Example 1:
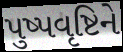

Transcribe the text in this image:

પુષ્પવૃષ્ટિને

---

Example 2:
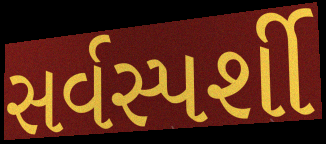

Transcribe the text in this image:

સર્વસ્પર્શી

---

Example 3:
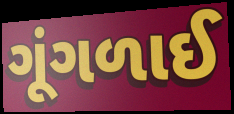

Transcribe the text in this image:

ગૂંગળાઈ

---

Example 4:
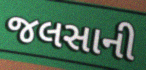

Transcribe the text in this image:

જલસાની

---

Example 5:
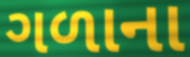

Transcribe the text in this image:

ગળાના